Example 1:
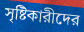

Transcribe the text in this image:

সৃষ্টিকারীদের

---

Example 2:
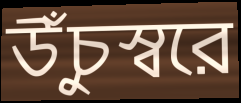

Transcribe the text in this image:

উঁচুস্বরে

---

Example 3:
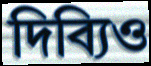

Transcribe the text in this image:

দিব্যিও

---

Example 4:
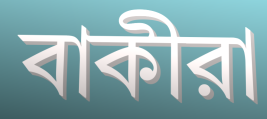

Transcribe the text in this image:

বাকীরা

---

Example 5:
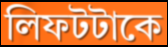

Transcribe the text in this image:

লিফটটাকে